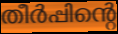
തീർപ്പിന്റെ